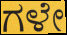
ಗಳೇ